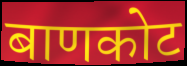
बाणकोट